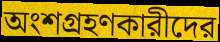
অংশগ্রহণকারীদের